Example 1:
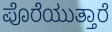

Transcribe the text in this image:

ಪೊರೆಯುತ್ತಾರೆ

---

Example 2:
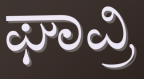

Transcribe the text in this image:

ಘಾವ್ರಿ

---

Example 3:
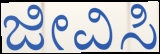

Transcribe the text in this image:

ಜೀವಿಸಿ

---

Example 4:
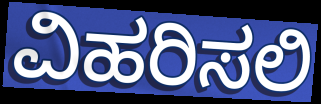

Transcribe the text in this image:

ವಿಹರಿಸಲಿ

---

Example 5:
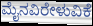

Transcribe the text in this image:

ಮೈನವಿರೇಳುವಿಕೆ